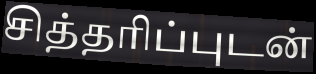
சித்தரிப்புடன்